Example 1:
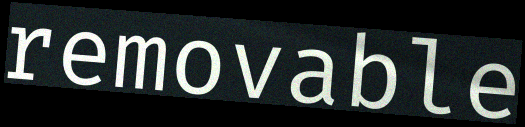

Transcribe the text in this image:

removable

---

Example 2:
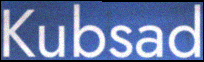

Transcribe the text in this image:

Kubsad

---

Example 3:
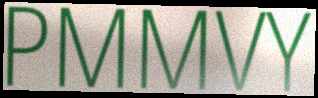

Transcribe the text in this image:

PMMVY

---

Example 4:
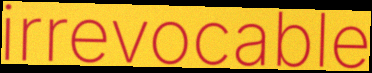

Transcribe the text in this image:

irrevocable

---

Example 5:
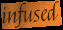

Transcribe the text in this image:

infused